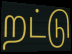
றட்டு